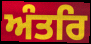
ਅੰਤਰਿ